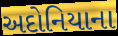
અદોનિયાના